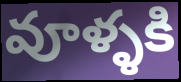
వూళ్ళకి